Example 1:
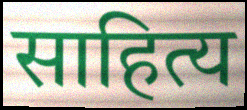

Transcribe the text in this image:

साहित्‍य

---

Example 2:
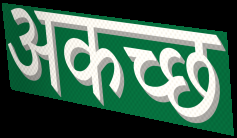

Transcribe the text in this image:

अकच्छ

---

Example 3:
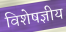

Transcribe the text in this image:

विशेषज्ञीय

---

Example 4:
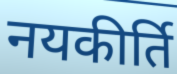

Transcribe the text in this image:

नयकीर्ति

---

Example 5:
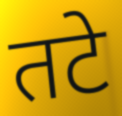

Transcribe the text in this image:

तटे